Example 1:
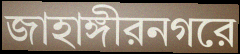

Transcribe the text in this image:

জাহাঙ্গীরনগরে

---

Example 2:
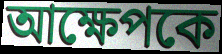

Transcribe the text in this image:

আক্ষেপকে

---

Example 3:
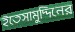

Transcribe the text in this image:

ইতেসামুদ্দিনের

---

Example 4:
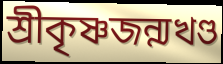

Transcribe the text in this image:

শ্রীকৃষ্ণজন্মখণ্ড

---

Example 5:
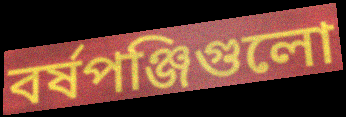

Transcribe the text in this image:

বর্ষপঞ্জিগুলো